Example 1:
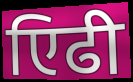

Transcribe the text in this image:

एिढी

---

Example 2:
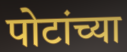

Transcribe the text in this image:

पोटांच्या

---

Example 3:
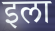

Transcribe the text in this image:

इला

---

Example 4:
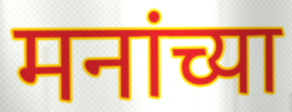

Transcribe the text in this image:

मनांच्या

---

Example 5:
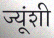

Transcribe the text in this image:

ज्यूंशी